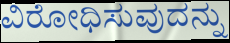
ವಿರೋಧಿಸುವುದನ್ನು